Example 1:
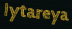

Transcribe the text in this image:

Iytareya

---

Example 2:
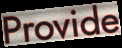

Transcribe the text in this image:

Provide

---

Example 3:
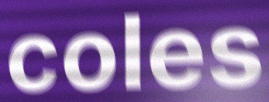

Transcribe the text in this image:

coles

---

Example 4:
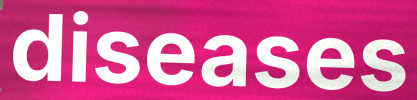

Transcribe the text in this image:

diseases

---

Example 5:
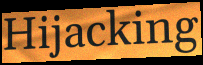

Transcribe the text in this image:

Hijacking